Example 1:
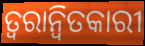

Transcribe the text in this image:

ତ୍ୱରାନ୍ୱିତକାରୀ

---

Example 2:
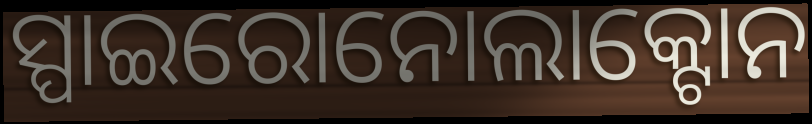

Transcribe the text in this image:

ସ୍ପାଇରୋନୋଲାକ୍ଟୋନ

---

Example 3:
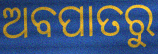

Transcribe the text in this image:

ଅବପାତରୁ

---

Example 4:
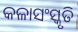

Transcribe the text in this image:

କଳାସଂସ୍କୃତି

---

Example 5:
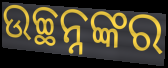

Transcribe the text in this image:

ଉଚ୍ଛନ୍ନଙ୍କର